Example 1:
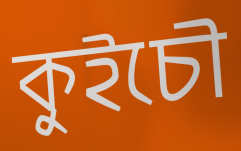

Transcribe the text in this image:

কুইচৌ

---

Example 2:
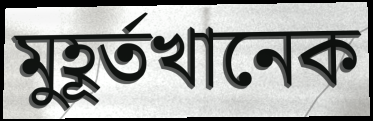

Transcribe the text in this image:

মুহূর্তখানেক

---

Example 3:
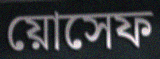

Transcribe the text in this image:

য়োসেফ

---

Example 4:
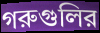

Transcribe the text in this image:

গরুগুলির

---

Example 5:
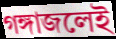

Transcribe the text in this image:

গঙ্গাজলেই